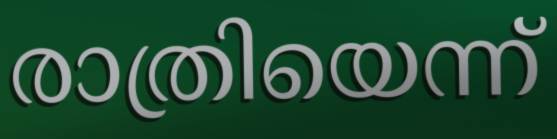
രാത്രിയെന്ന്